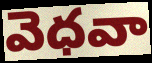
వెధవా